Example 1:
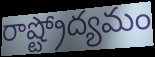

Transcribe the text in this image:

రాష్ట్రోద్యమం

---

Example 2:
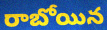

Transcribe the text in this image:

రాబోయిన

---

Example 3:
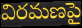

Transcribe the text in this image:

విరమణపై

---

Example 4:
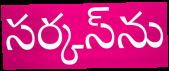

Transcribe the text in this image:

సర్కస్‌ను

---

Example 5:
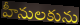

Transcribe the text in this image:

హీనులకును